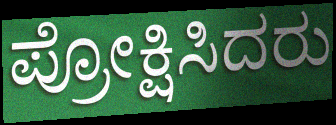
ಪ್ರೋಕ್ಷಿಸಿದರು